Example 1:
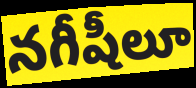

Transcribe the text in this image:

నగీషీలూ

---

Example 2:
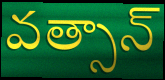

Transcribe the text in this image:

వత్సాన్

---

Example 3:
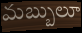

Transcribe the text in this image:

మబ్బులూ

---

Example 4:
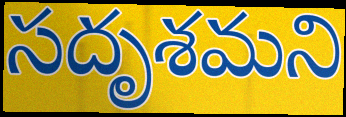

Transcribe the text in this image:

సదృశమని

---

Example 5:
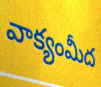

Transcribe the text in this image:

వాక్యంమీద